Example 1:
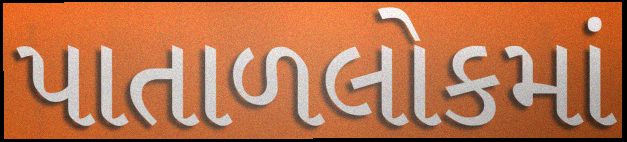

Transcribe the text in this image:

પાતાળલોકમાં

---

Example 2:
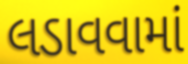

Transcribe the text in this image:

લડાવવામાં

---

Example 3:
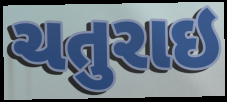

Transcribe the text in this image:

ચતુરાઇ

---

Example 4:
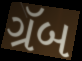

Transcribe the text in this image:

ગ્રૅબ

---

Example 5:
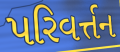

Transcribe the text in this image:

પરિવર્ત્તન